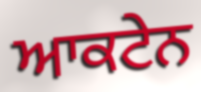
ਆਕਟੇਨ